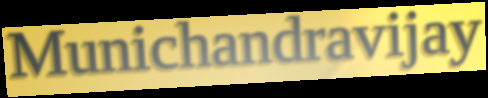
Munichandravijay